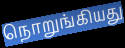
நொறுங்கியது